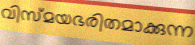
വിസ്മയഭരിതമാക്കുന്ന